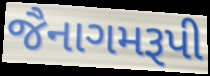
જૈનાગમરૂપી